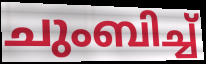
ചുംബിച്ച്